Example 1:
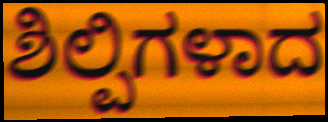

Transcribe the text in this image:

ಶಿಲ್ಪಿಗಳಾದ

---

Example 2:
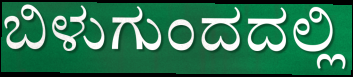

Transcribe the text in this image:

ಬಿಳುಗುಂದದಲ್ಲಿ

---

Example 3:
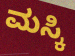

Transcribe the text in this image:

ಮಸ್ಕಿ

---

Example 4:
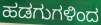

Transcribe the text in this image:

ಹಡಗುಗಳಿಂದ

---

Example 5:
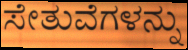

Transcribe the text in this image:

ಸೇತುವೆಗಳನ್ನು